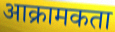
आक्रामकता